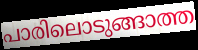
പാരിലൊടുങ്ങാത്ത